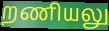
றணியலு